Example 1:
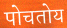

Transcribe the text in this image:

पोचतोय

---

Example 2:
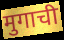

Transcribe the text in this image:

मुगाची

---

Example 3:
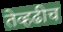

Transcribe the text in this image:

तेव्हढीच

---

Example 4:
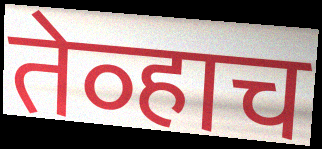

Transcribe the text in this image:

तेव्हाच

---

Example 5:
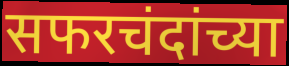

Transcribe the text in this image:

सफरचंदांच्या